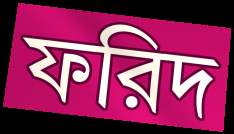
ফরিদ